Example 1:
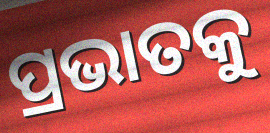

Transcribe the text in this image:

ପ୍ରଭାତକୁ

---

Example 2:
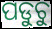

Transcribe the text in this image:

ପଡୁଚୁ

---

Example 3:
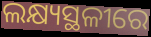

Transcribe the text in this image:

ଲକ୍ଷ୍ୟସ୍ଥଳୀରେ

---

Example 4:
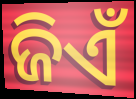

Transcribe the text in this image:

ଜିଏଁ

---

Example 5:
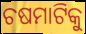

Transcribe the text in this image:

ଚଷମାଟିକୁ